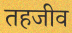
तहजीव